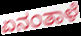
ಏನಂತಾಳೆ